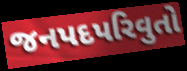
જનપદપરિવુતો